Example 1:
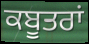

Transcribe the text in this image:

ਕਬੂਤਰਾਂ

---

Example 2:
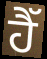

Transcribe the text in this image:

ਹੈੱ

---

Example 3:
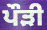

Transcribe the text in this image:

ਪੌੜੀ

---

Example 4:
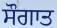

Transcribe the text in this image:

ਸੌਗਾਤ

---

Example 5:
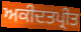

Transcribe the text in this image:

ਅਕੀਦਤਪ੍ਰੀਤ